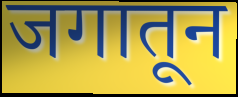
जगातून